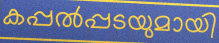
കപ്പൽപ്പടയുമായി